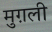
मुग़ली